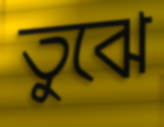
তুঝে